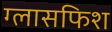
ग्लासफिश